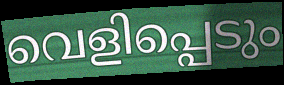
വെളിപ്പെടും